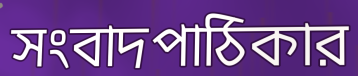
সংবাদপাঠিকার